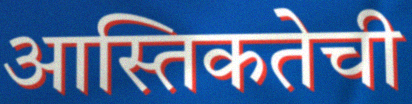
आस्तिकतेची